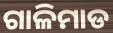
ଗାଳିମାଡ